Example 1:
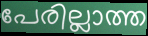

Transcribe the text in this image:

പേരില്ലാത്ത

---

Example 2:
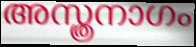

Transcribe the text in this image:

അസ്ത്രനാഗം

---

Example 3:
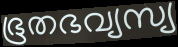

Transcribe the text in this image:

ഭൂതഭവ്യസ്യ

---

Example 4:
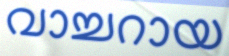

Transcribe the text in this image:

വാച്ചറായ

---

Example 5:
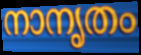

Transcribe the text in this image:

നാനൃതം